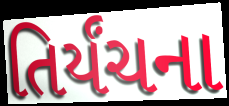
તિર્યંચના